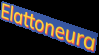
Elattoneura